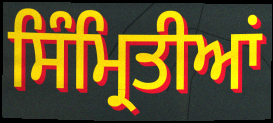
ਸਿੰਮ੍ਰਿਤੀਆਂ